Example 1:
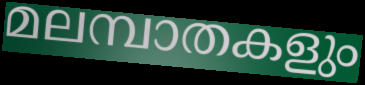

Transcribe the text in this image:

മലമ്പാതകളും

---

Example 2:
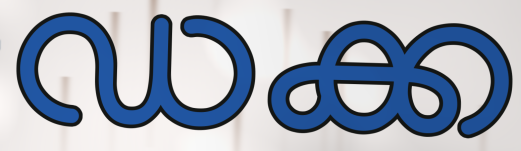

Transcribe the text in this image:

ഡക്ക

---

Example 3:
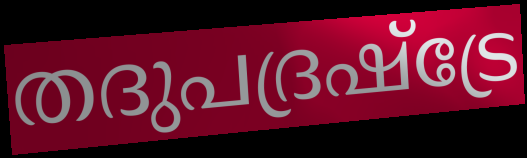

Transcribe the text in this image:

തദുപദ്രഷ്ട്രേ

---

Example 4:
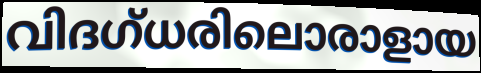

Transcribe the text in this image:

വിദഗ്ധരിലൊരാളായ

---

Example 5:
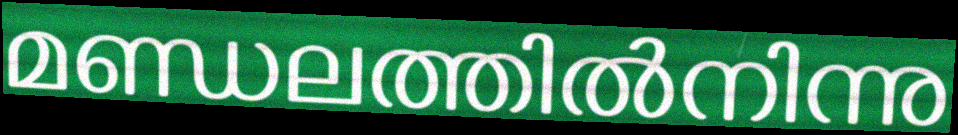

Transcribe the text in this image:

മണ്ഡലത്തിൽനിന്നു